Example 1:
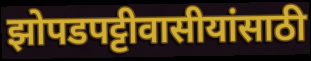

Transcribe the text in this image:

झोपडपट्टीवासीयांसाठी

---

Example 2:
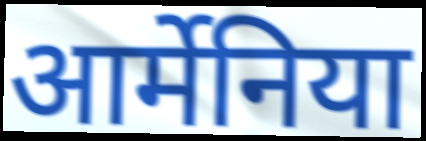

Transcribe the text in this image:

आर्मेनिया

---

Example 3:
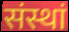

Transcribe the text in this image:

संस्थां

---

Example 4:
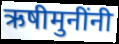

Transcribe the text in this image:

ऋषीमुनींनी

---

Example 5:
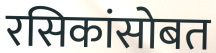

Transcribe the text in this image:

रसिकांसोबत